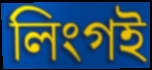
লিংগই